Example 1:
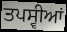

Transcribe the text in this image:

ਤਪਸ੍ਵੀਆਂ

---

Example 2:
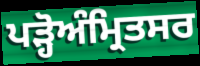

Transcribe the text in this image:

ਪੜ੍ਹੋਅੰਮ੍ਰਿਤਸਰ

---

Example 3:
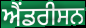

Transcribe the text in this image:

ਐਂਡਰੀਸਨ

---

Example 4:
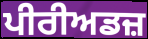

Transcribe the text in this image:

ਪੀਰੀਅਡਜ਼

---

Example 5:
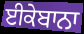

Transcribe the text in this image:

ਈਕੇਬਾਨਾ